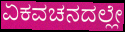
ಏಕವಚನದಲ್ಲೇ